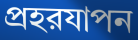
প্রহরযাপন